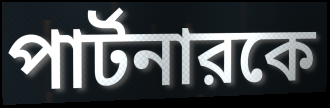
পার্টনারকে